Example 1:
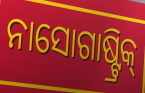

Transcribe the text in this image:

ନାସୋଗାଷ୍ଟ୍ରିକ୍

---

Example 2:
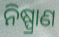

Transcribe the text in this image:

ନିଷ୍ପ୍ରାଣ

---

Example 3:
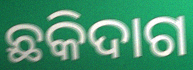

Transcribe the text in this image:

ଛକିଦାଗ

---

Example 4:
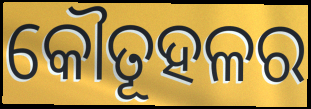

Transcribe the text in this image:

କୌତୂହଳର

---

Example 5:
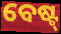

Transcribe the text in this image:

ବେଷ୍ଟ୍